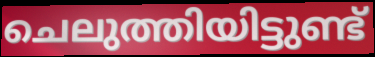
ചെലുത്തിയിട്ടുണ്ട്